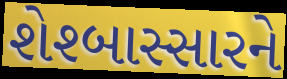
શેશ્બાસ્સારને